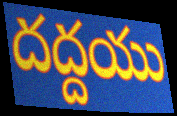
దద్దయు